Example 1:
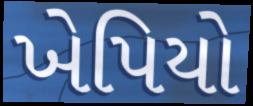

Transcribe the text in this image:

ખેપિયો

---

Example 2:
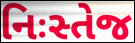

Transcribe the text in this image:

નિઃસ્તેજ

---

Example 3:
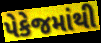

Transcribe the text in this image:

પેકેજમાંથી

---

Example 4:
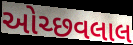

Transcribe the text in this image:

ઓચ્છવલાલ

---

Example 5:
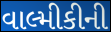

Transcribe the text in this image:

વાલ્મીકીની